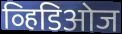
व्हिडिओज